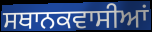
ਸਥਾਨਕਵਾਸੀਆਂ